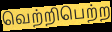
வெற்றிபெற்ற